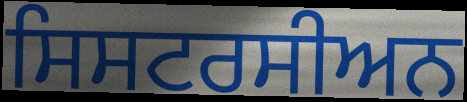
ਸਿਸਟਰਸੀਅਨ